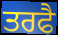
ਤਰਫੈ